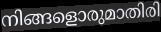
നിങ്ങളൊരുമാതിരി